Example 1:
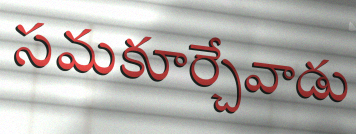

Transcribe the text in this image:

సమకూర్చేవాడు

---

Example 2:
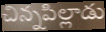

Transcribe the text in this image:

చిన్నపిల్లాడు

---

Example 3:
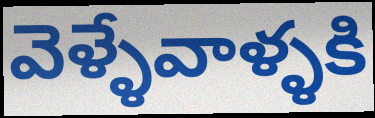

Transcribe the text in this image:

వెళ్ళేవాళ్ళకి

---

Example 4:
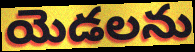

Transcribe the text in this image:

యెడలను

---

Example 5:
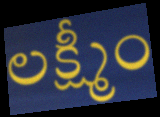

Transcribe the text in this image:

లక్ష్మీం